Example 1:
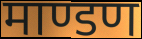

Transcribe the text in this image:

माण्डण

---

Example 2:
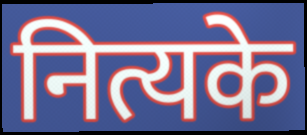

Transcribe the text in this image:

नित्यके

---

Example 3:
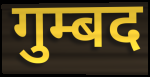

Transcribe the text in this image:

गुम्बद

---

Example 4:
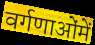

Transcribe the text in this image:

वर्गणाओंमें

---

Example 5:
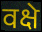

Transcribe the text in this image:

वक्षे